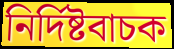
নিৰ্দিষ্টবাচক